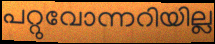
പറ്റുവോന്നറിയില്ല